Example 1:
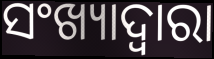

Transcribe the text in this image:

ସଂଖ୍ୟାଦ୍ୱାରା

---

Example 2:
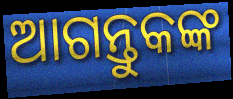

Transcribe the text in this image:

ଆଗନ୍ତୁକଙ୍କ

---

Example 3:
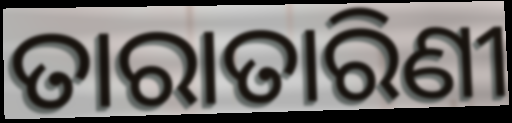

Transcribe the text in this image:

ତାରାତାରିଣୀ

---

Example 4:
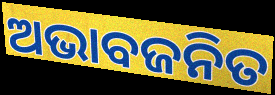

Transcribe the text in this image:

ଅଭାବଜନିତ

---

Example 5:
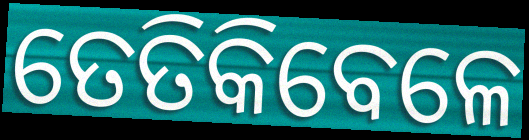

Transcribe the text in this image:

ତେତିକିବେଳେ